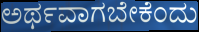
ಅರ್ಥವಾಗಬೇಕೆಂದು